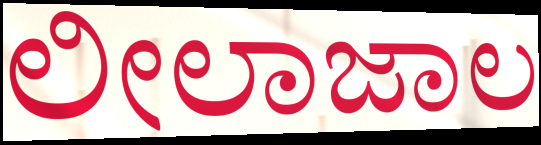
ಲೀಲಾಜಾಲ